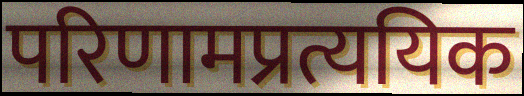
परिणामप्रत्ययिक